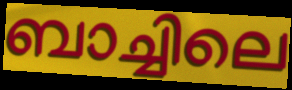
ബാച്ചിലെ